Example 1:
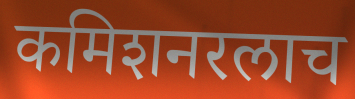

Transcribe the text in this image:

कमिशनरलाच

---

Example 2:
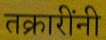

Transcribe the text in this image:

तक्रारींनी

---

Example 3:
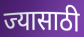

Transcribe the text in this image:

ज्यासाठी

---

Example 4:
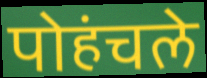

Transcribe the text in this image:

पोहंचले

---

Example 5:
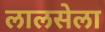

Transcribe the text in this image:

लालसेला